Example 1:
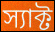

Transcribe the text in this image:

স্যাক্ট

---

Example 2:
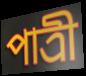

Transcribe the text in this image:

পাত্রী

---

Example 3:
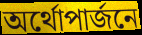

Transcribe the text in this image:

অর্থোপার্জনে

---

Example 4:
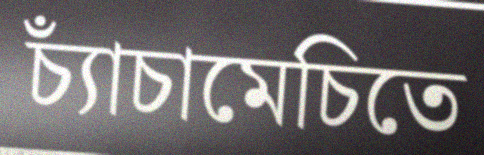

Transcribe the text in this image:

চ্যাঁচামেচিতে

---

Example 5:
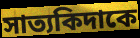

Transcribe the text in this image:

সাত্যকিদাকে